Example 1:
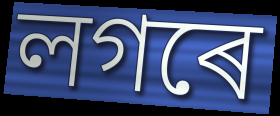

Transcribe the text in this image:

লগৰে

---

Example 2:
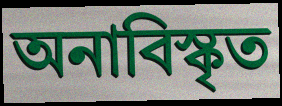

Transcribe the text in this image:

অনাবিস্কৃত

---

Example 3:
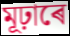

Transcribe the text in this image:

মূঢ়াৰে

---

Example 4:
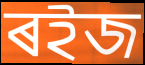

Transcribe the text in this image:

ৰইজ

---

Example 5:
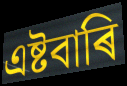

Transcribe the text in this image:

এষ্টবাৰি